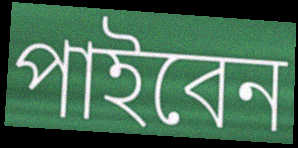
পাইবেন